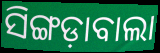
ସିଙ୍ଗଡ଼ାବାଲା